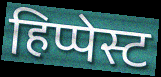
हिप्पेस्ट